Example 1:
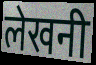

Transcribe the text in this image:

लेखनी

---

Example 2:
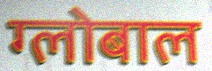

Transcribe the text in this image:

ग्लोबाल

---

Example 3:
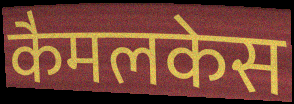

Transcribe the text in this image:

कैमलकेस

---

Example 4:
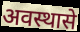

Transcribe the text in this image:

अवस्थासे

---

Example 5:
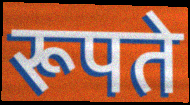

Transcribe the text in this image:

रूपते